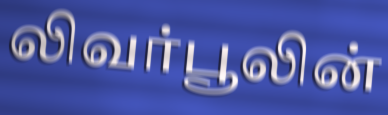
லிவர்பூலின்